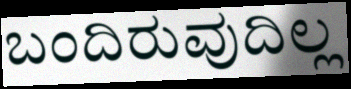
ಬಂದಿರುವುದಿಲ್ಲ